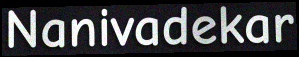
Nanivadekar